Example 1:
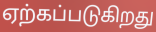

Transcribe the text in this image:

ஏற்கப்படுகிறது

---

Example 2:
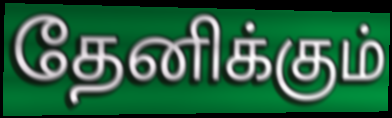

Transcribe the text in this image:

தேனிக்கும்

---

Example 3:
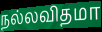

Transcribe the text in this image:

நல்லவிதமா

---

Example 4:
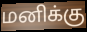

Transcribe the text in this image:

மனிக்கு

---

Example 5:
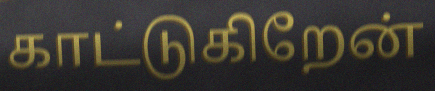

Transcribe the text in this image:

காட்டுகிறேன்